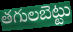
తగులబెట్టు